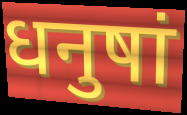
धनुषां